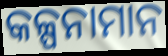
କଳ୍ପନାମାନ